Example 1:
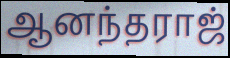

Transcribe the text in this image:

ஆனந்தராஜ்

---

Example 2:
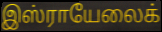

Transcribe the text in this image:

இஸ்ராயேலைக்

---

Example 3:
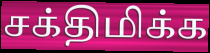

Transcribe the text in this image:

சக்திமிக்க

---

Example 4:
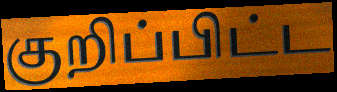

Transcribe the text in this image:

குறிப்பிட்ட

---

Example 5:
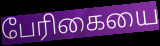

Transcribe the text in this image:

பேரிகையை